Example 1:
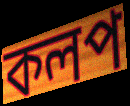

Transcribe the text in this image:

কলপ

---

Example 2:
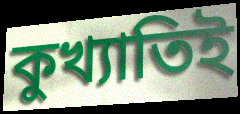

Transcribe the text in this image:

কুখ্যাতিই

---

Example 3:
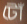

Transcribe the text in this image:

টোঁ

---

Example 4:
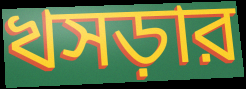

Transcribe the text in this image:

খসড়ার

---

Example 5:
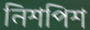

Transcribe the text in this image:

নিশপিশ